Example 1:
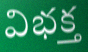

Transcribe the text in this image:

విభక్త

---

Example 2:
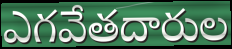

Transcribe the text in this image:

ఎగవేతదారుల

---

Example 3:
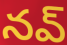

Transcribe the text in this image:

నవ్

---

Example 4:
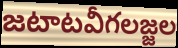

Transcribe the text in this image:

జటాటవీగలజ్జల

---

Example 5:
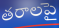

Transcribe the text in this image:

తరాలపై